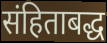
संहिताबद्ध